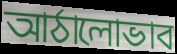
আঠালোভাব